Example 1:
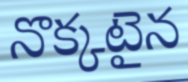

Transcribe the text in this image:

నొక్కటైన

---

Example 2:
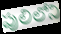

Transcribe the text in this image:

పులిలోని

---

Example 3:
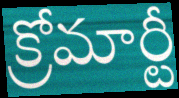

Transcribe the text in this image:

క్రోమార్టీ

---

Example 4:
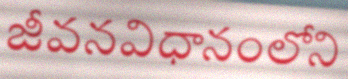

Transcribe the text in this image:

జీవనవిధానంలోని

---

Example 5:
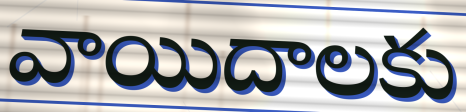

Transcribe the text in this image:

వాయిదాలకు